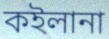
কইলানা